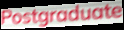
Postgraduate